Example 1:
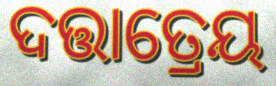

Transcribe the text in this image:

ଦତ୍ତାତ୍ରେୟ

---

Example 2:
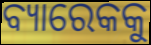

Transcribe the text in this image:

ବ୍ୟାରେକକୁ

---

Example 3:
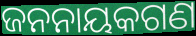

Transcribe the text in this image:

ଜନନାୟକଗଣ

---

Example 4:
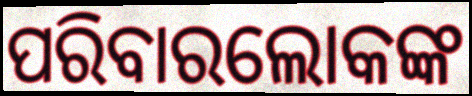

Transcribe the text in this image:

ପରିବାରଲୋକଙ୍କ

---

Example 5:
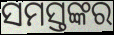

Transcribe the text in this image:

ସମସ୍ତଙ୍କର